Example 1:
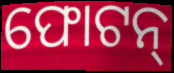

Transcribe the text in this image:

ଫୋଟନ୍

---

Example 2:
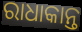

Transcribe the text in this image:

ରାଧାକାନ୍ତ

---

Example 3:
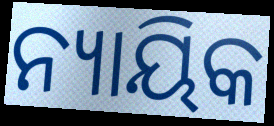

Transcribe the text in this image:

ନ୍ୟାୟିକ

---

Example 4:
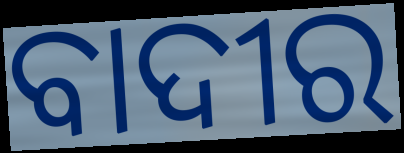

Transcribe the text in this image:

ବାଦୀର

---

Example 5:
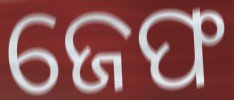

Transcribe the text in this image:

ଜେଫ